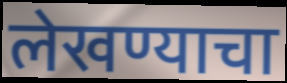
लेखण्याचा